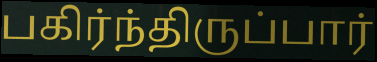
பகிர்ந்திருப்பார்